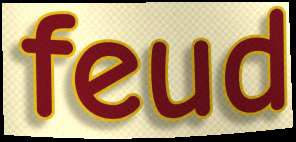
feud